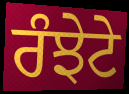
ਰੰਝੇਟੇ